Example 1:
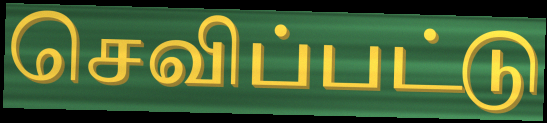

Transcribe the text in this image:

செவிப்பட்டு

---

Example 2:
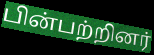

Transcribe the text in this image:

பின்பற்றினர்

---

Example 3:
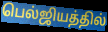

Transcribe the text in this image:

பெல்ஜியத்தில்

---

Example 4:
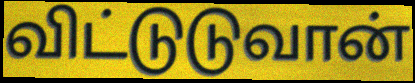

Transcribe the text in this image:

விட்டுடுவான்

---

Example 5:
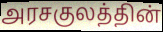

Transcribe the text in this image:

அரசகுலத்தின்